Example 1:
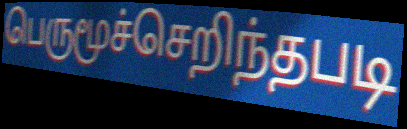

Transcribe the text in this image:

பெருமூச்செறிந்தபடி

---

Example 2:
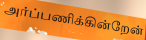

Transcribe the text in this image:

அர்ப்பணிக்கின்றேன்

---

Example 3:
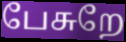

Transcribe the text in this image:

பேசுறே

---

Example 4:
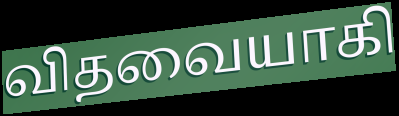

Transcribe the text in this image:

விதவையாகி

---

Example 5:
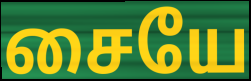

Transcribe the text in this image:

சையே